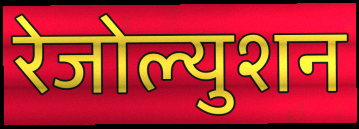
रेजोल्युशन